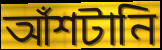
আঁশটানি